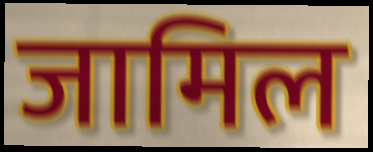
जामिल